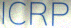
ICRP